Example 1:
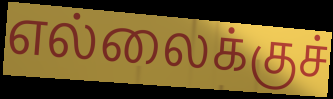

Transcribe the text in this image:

எல்லைக்குச்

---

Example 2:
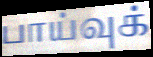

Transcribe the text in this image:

பாய்வுக்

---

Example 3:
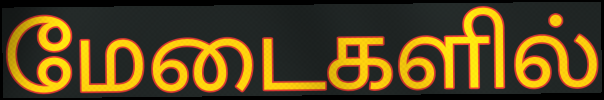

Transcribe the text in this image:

மேடைகளில்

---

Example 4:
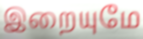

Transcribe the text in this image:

இறையுமே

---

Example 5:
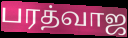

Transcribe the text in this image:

பரத்வாஜ